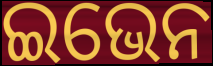
ଇଭେନ